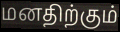
மனதிற்கும்